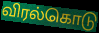
விரல்கொடு